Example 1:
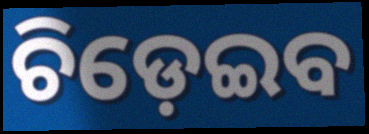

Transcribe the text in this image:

ଚିଡ଼େଇବ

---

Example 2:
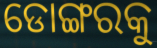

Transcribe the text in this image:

ଡୋଙ୍ଗରକୁ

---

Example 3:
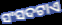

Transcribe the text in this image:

ସଂସଦଟାଏ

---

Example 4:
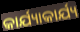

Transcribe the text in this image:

କାର୍ଯ୍ୟାକାର୍ଯ୍ୟ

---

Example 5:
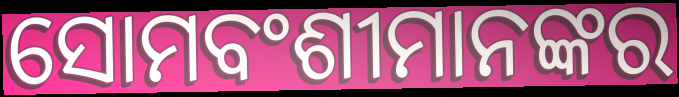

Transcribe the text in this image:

ସୋମବଂଶୀମାନଙ୍କର